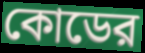
কোডের